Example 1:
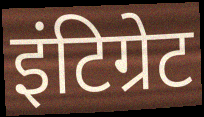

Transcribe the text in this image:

इंटिग्रेट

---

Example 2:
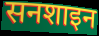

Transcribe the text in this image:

सनशाइन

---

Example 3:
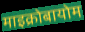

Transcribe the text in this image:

माइक्रोबायोम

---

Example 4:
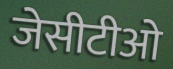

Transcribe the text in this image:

जेसीटीओ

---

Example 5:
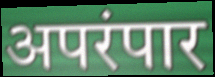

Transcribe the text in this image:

अपरंपार